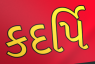
કદર્પિ